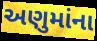
અણુમાંના